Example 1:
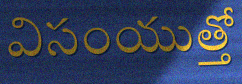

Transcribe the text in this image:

విసంయుత్తో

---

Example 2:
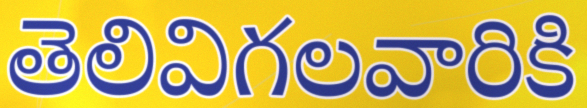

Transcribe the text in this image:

తెలివిగలవారికి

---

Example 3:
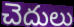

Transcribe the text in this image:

చెదులు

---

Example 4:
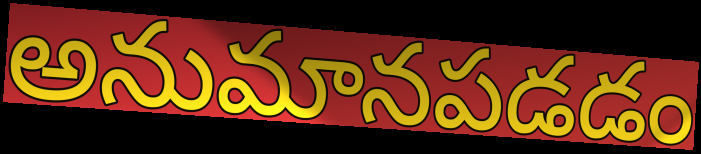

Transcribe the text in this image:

అనుమానపడడం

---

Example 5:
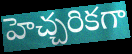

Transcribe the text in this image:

హెచ్చరికగా